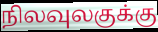
நிலவுலகுக்கு